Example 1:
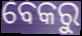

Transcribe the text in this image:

ବେକରୁ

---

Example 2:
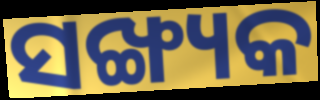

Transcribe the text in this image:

ସଙ୍ଖ୍ୟକ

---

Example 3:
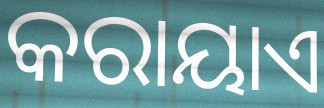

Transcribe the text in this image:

କରାୟାଏ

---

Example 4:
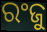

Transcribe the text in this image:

ରଂଜୁ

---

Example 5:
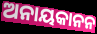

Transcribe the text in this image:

ଅନାୟକାନନ